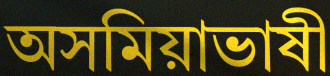
অসমিয়াভাষী